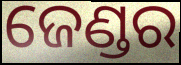
ଜେଣ୍ଡର